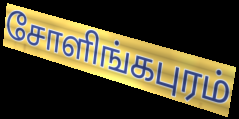
சோளிங்கபுரம்